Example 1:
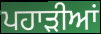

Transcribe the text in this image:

ਪਹਾਡ਼ੀਆਂ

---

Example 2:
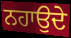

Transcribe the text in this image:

ਨਹਾਉਦੇ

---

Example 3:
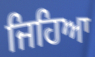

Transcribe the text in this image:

ਜਿਹਿਆ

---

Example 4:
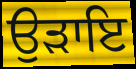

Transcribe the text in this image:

ਉੜਾਇ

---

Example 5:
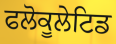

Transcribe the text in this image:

ਫਲੋਕੂਲੇਟਿਡ